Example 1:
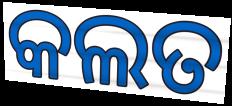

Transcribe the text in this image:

କଲତ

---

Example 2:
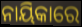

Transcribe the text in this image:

ନାୟିକାରେ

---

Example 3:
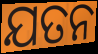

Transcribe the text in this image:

ଯତନ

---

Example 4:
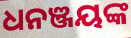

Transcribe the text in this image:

ଧନଞ୍ଜୟଙ୍କ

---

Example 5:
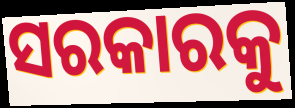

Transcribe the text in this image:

ସରକାରକୁ